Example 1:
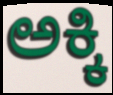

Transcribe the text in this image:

ಅಕ್ಕಿ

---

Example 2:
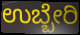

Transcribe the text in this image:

ಉಬ್ಬೇರಿ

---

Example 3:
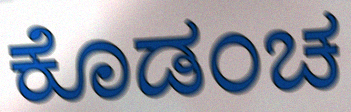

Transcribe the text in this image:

ಕೊಡಂಚ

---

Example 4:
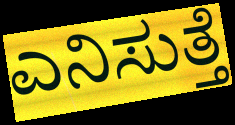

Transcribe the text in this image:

ಎನಿಸುತ್ತೆ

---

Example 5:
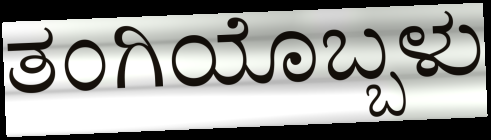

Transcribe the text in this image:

ತಂಗಿಯೊಬ್ಬಳು